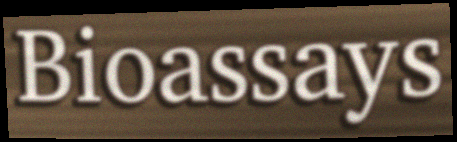
Bioassays